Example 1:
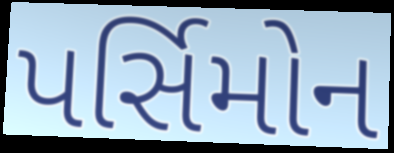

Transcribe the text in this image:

પર્સિમોન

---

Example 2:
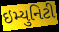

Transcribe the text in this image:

ઇમ્યુનિટી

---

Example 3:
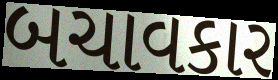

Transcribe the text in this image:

બચાવકાર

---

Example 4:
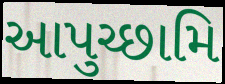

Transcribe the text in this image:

આપુચ્છામિ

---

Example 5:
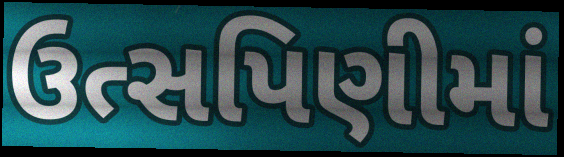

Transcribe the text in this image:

ઉત્સપિણીમાં